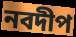
নবদীপ